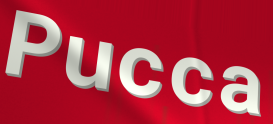
Pucca